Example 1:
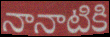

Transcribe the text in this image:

నానాటికి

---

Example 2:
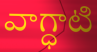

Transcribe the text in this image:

వాగ్ధాటి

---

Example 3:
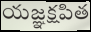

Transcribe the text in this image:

యజ్ఞక్షపిత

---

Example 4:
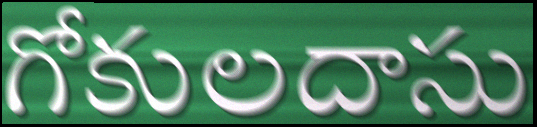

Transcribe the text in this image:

గోకులదాసు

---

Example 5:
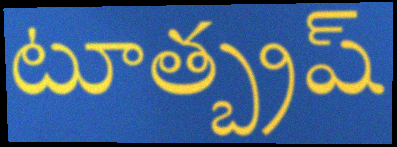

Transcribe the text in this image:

టూత్బ్రష్